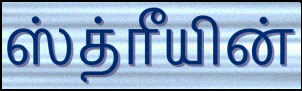
ஸ்த்ரீயின்